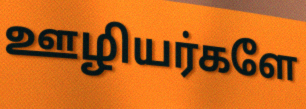
ஊழியர்களே